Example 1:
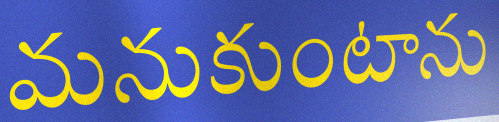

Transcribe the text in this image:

మనుకుంటాను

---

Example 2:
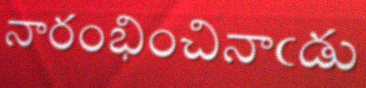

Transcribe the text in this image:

నారంభించినాఁడు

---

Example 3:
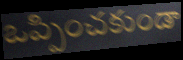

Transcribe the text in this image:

ఒప్పించకుండా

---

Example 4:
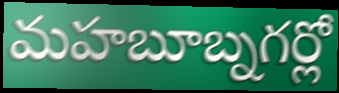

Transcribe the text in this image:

మహబూబ్నగర్లో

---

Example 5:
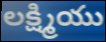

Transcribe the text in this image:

లక్ష్మియు